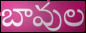
బావుల